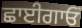
ਛਾਈਗਾਓਂ